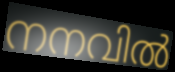
നനവിൽ